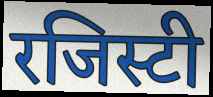
रजिस्टी